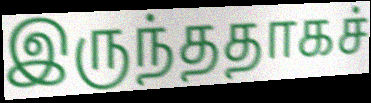
இருந்ததாகச்